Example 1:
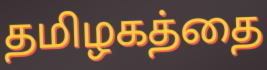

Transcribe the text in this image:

தமிழகத்தை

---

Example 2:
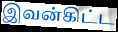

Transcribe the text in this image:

இவன்கிட்ட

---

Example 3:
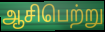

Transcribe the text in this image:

ஆசிபெற்று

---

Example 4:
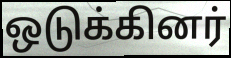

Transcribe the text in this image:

ஒடுக்கினர்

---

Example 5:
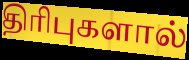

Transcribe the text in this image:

திரிபுகளால்